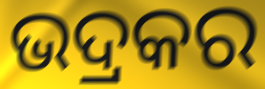
ଭଦ୍ରକର